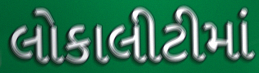
લોકાલીટીમાં